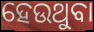
ହେଉଥୁବା